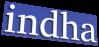
indha